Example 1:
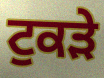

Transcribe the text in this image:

ਟੁਕੜੇ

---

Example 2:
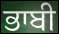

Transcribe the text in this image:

ਭਾਬੀ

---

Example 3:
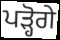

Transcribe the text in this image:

ਪੜ੍ਹੋਗੇ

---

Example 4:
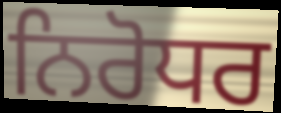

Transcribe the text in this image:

ਨਿਰੋਧਰ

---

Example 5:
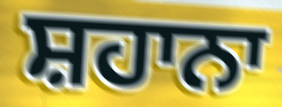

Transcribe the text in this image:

ਸ਼ਹਾਨਾ